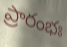
ప్రారంభః